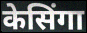
केसिंगा